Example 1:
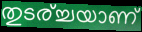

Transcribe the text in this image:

തുടര്ച്ചയാണ്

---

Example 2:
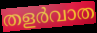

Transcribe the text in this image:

തളർവാത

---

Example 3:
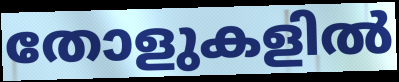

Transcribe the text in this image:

തോളുകളിൽ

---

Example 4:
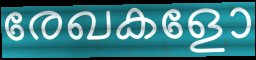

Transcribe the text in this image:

രേഖകളോ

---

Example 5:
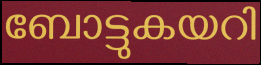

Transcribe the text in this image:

ബോട്ടുകയറി